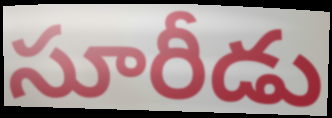
సూరీడు